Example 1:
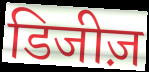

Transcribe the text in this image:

डिजीज़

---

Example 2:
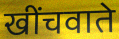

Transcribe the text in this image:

खींचवाते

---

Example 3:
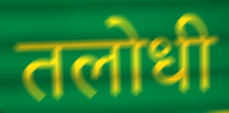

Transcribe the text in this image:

तलोधी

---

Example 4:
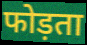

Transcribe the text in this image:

फोड़ता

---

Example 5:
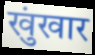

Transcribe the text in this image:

खुंखार